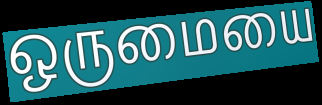
ஒருமையை